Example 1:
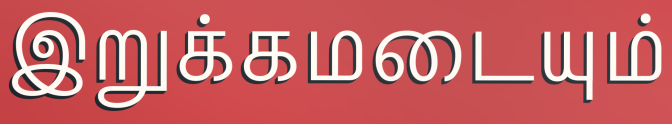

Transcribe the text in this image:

இறுக்கமடையும்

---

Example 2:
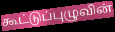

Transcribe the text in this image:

கூட்டுப்புழுவின்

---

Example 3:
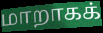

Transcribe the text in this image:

மாறாகக்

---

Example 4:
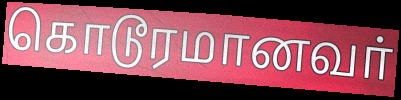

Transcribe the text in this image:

கொடூரமானவர்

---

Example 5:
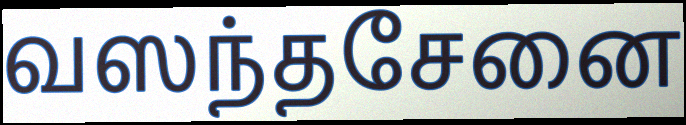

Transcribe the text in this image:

வஸந்தசேனை